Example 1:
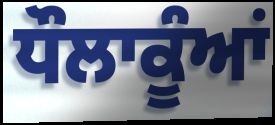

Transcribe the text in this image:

ਧੌਲਾਕੂੰਆਂ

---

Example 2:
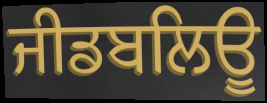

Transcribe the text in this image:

ਜੀਡਬਲਿਊ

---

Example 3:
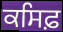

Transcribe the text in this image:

ਕਸਿਫ਼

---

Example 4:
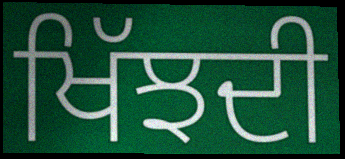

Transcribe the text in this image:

ਖਿੱਝਦੀ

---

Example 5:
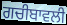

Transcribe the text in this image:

ਗਚੀਬਾਵਲੀ